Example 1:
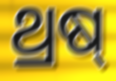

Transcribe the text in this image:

ଥ୍ରଷ୍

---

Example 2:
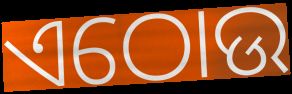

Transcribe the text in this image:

ଏଠୋଉ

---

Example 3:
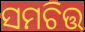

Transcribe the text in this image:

ସମଚିତ୍ତ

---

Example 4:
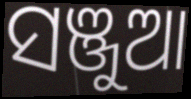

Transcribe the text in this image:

ସଞ୍ଜୁଆ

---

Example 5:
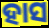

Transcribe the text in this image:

ହାସ